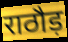
राठौड़